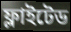
ফ্লাইটেড